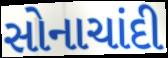
સોનાચાંદી